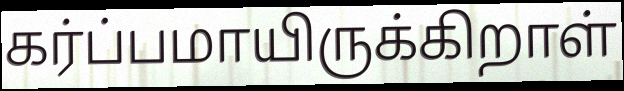
கர்ப்பமாயிருக்கிறாள்